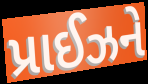
પ્રાઈઝને